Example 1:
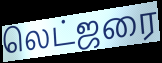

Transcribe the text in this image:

லெட்ஜரை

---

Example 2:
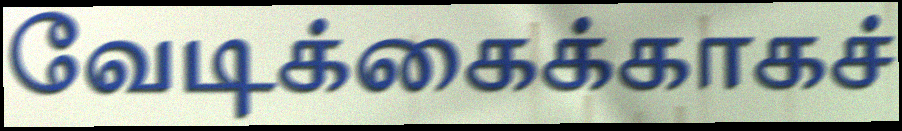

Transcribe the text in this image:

வேடிக்கைக்காகச்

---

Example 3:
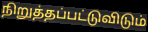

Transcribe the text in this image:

நிறுத்தப்பட்டுவிடும்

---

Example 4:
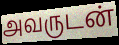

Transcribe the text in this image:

அவருடன்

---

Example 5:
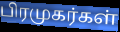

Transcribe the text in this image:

பிரமுகர்கள்